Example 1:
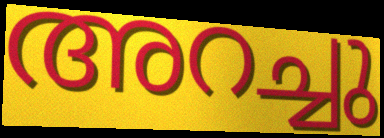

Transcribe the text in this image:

അറച്ചു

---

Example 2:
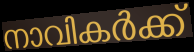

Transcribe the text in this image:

നാവികർക്ക്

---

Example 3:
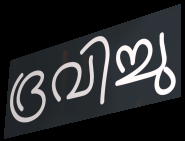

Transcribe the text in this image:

ദ്രവിച്ചു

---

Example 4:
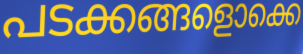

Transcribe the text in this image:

പടക്കങ്ങളൊക്കെ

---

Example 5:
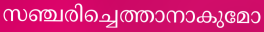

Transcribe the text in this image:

സഞ്ചരിച്ചെത്താനാകുമോ